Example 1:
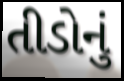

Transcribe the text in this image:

તીડોનું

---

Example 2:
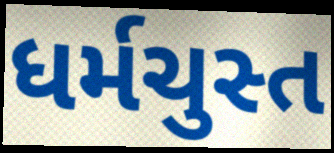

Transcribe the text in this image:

ધર્મચુસ્ત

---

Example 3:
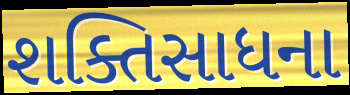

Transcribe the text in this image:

શક્તિસાધના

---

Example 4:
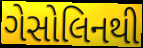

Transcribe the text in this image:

ગેસોલિનથી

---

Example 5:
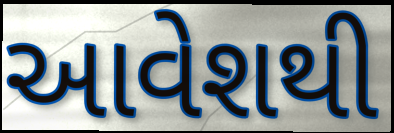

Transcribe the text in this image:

આવેશથી